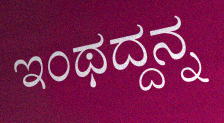
ಇಂಥದ್ದನ್ನ